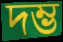
দম্ভ